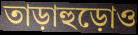
তাড়াহুড়োও